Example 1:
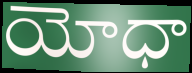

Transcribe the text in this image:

యోధా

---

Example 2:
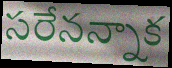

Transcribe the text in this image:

సరేనన్నాక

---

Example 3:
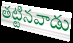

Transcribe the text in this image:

తట్టినవాడు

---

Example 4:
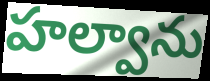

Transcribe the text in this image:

హల్వాను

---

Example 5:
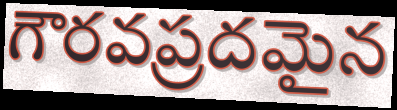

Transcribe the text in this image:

గౌరవప్రదమైన